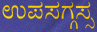
ಉಪಸಗ್ಗಸ್ಸ